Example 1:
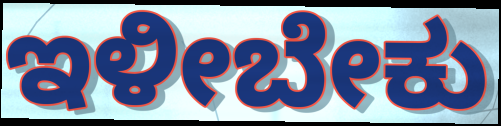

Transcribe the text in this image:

ಇಳೀಬೇಕು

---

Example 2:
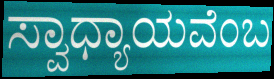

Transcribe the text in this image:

ಸ್ವಾಧ್ಯಾಯವೆಂಬ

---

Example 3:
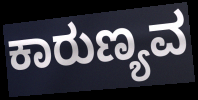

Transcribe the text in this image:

ಕಾರುಣ್ಯವ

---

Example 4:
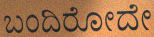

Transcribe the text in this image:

ಬಂದಿರೋದೇ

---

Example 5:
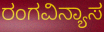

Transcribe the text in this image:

ರಂಗವಿನ್ಯಾಸ